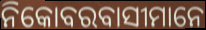
ନିକୋବରବାସୀମାନେ